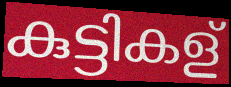
കുട്ടികള്